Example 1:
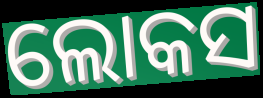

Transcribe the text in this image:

ଲୋକସ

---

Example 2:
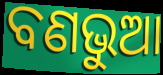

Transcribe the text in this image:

ବଣଭୁଆ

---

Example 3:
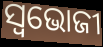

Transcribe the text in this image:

ସ୍ଵଭୋଜୀ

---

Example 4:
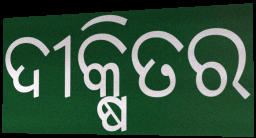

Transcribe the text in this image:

ଦୀକ୍ଷିତର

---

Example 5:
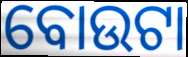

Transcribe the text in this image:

ବୋଉଟା